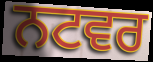
ਨਟਵਰ